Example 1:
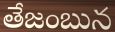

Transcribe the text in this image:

తేజంబున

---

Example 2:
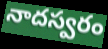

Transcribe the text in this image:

నాదస్వరం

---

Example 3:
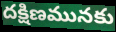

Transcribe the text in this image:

దక్షిణమునకు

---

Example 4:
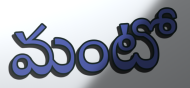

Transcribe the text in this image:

మంటో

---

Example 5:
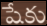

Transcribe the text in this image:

షేకు